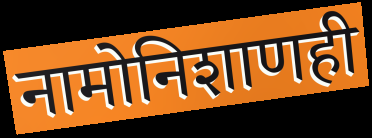
नामोनिशाणही